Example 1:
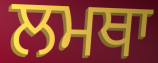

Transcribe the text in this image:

ਲਮਥਾ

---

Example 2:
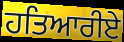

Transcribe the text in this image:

ਹਤਿਆਰੀਏ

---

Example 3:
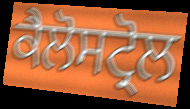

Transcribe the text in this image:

ਕੈਲੋਸਟ੍ਰੋਲ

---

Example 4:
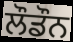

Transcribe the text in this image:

ਲੌਡੌਨ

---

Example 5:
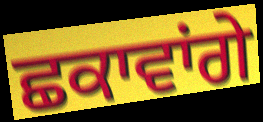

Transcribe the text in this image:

ਛਕਾਵਾਂਗੇ